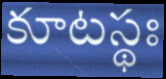
కూటస్థః